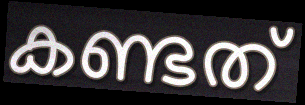
കണ്ടത്